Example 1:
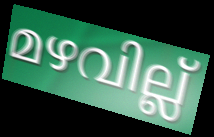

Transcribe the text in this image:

മഴവില്ല്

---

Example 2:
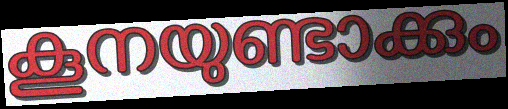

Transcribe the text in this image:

കൂനയുണ്ടാക്കും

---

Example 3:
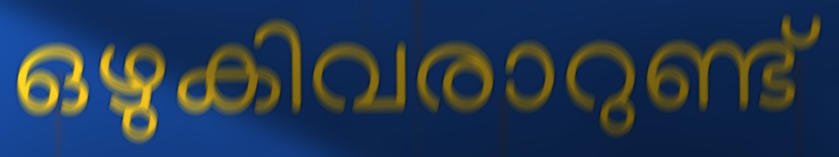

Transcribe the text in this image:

ഒഴുകിവരാറുണ്ട്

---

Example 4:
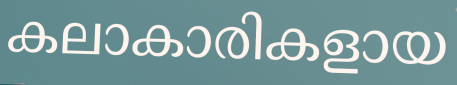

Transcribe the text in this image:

കലാകാരികളായ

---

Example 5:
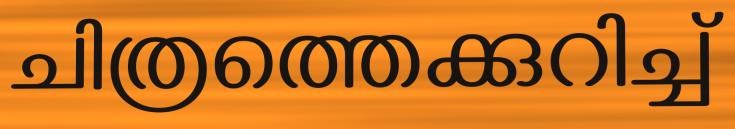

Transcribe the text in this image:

ചിത്രത്തെക്കുറിച്ച്